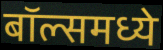
बॉल्समध्ये